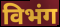
विभंग